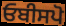
ਓਬੀਸਪੋ